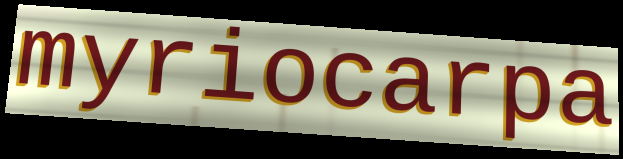
myriocarpa